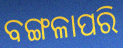
ବଙ୍ଗଳାପରି